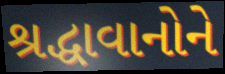
શ્રદ્ધાવાનોને